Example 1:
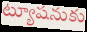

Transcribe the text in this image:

ట్యూషనుకు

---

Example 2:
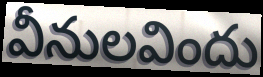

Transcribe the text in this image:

వీనులవిందు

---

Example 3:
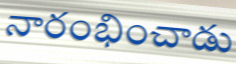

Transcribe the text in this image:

నారంభించాడు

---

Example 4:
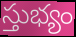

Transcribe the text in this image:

స్తుభ్యం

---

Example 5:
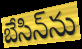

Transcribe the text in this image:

బేసిన్‌ను